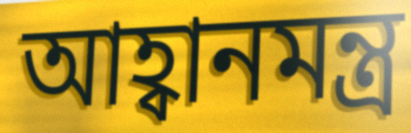
আহ্বানমন্ত্র